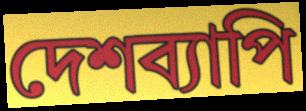
দেশব্যাপি